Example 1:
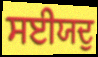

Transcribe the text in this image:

ਸਈਯਦੁ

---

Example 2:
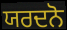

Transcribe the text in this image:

ਯਰਦਨੋ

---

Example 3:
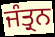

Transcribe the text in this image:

ਜੰਤ੍ਰਨ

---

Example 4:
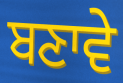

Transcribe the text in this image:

ਬਣਾਵੇ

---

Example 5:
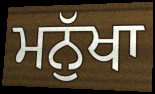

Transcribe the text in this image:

ਮਨੁੱਖਾ